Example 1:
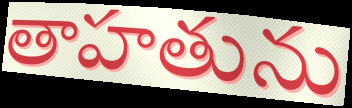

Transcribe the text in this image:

తాహతును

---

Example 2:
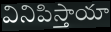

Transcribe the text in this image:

వినిపిస్తాయా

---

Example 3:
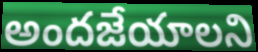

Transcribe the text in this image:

అందజేయాలని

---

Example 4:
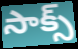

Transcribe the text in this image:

సాక్స్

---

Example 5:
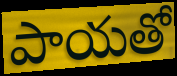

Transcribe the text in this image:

పాయతో